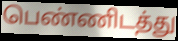
பெண்ணிடத்து